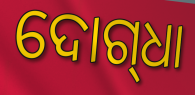
ଦୋଗ୍‌ଧା